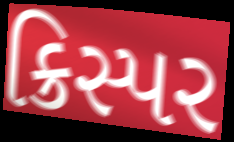
ક્રિસ્પર